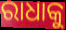
ରାଧାକୁ